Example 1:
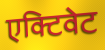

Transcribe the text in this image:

एक्टिवेट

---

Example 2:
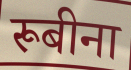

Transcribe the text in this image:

रूबीना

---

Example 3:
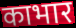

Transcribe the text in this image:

काभार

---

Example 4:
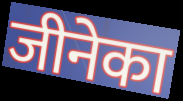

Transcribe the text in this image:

जीनेका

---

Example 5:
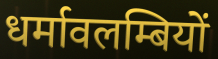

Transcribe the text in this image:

धर्मावलम्बियों